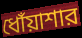
ধোঁয়াশার